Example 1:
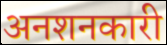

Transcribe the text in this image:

अनशनकारी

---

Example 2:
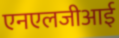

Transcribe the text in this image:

एनएलजीआई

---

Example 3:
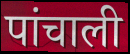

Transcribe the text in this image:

पांचाली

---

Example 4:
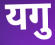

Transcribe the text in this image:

यगु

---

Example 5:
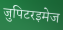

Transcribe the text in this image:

जुपिटरइमेज